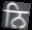
ਨਿ